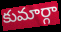
కుమార్గా